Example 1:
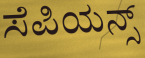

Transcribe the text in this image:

ಸೆಪಿಯನ್ಸ್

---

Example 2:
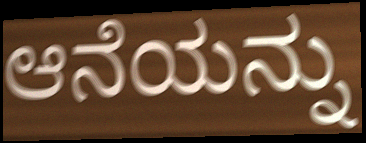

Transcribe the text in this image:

ಆನೆಯನ್ನು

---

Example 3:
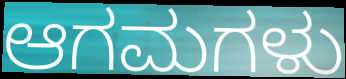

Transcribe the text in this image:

ಆಗಮಗಳು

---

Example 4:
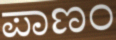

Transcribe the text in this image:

ಪಾಣಂ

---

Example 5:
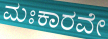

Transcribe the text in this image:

ಮಃಕಾರವೇ